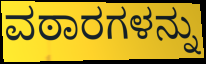
ವಠಾರಗಳನ್ನು